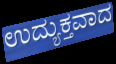
ಉದ್ಯುಕ್ತವಾದ